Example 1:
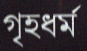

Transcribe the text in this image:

গৃহধর্ম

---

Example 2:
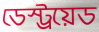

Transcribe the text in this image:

ডেস্ট্রয়েড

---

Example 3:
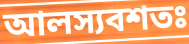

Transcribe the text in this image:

আলস্যবশতঃ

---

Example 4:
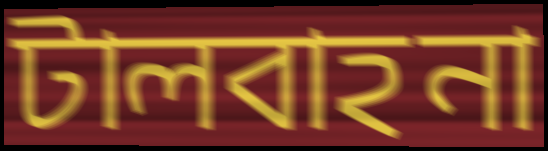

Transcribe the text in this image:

টালবাহনা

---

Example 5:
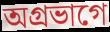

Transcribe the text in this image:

অগ্রভাগে